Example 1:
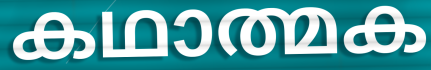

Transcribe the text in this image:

കഥാത്മക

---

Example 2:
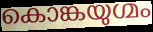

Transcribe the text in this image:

കൊങ്കയുഗ്മം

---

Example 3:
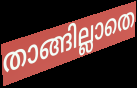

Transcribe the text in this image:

താങ്ങില്ലാതെ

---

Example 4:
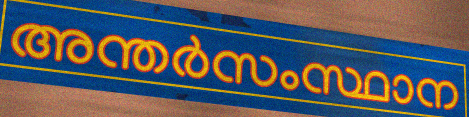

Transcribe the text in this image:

അന്തർസംസ്ഥാന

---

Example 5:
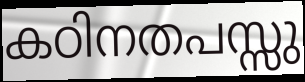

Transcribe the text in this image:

കഠിനതപസ്സു